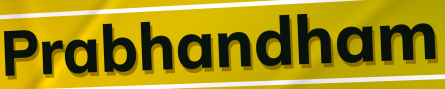
Prabhandham